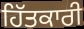
ਹਿੱਤਕਾਰੀ